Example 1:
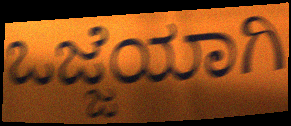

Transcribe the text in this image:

ಒಜ್ಜೆಯಾಗಿ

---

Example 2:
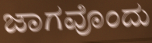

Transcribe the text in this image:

ಜಾಗವೊಂದು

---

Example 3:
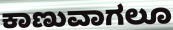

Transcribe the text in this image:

ಕಾಣುವಾಗಲೂ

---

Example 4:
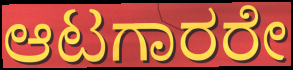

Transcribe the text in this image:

ಆಟಗಾರರೇ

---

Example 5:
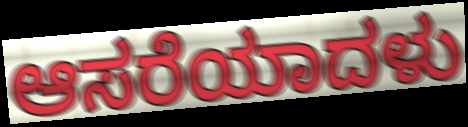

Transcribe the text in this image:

ಆಸರೆಯಾದಳು